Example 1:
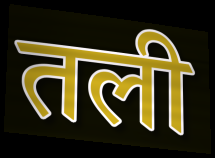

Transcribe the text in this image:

तली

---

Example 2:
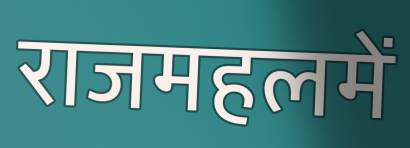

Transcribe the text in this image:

राजमहलमें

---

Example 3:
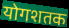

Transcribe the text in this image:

योगशतक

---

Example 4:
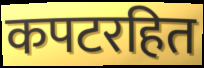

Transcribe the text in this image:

कपटरहित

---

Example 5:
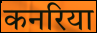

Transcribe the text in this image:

कनरिया